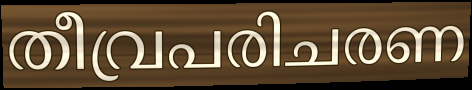
തീവ്രപരിചരണ